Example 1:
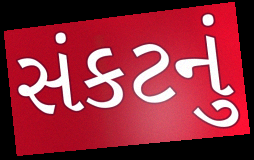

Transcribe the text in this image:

સંકટનું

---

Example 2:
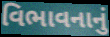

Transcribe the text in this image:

વિભાવનાનું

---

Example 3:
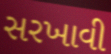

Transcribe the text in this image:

સરખાવી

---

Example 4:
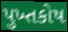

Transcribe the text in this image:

પુખ્તકોષ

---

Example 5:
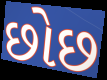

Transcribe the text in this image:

છોછ